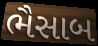
ભૈસાબ